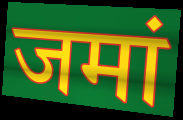
जमां